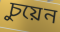
চুয়েন